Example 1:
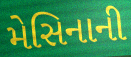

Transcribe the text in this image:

મેસિનાની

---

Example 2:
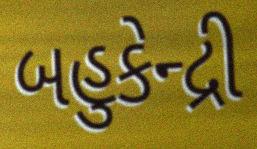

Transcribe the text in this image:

બહુકેન્દ્રી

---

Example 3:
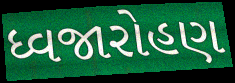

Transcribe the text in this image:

ધ્વજારોહણ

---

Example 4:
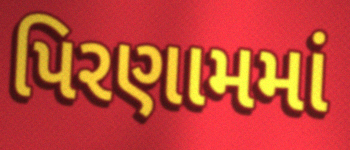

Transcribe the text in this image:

પિરણામમાં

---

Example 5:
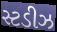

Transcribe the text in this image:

સ્ટડીઝ